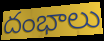
దంభాలు